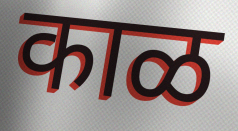
काळ